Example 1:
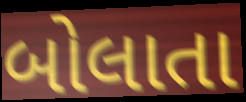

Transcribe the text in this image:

બોલાતા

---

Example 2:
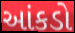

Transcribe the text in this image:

આંકડો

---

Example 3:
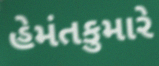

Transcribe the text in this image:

હેમંતકુમારે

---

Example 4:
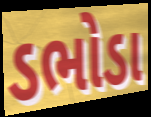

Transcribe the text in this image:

ડભોડા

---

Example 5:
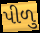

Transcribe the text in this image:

પીળુ